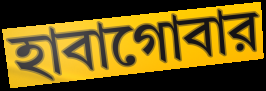
হাবাগোবার